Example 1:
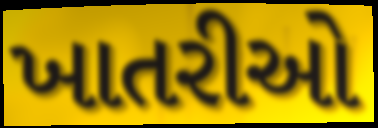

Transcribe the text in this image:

ખાતરીઓ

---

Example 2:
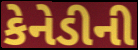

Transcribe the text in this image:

કેનેડીની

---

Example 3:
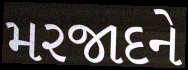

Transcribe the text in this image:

મરજાદને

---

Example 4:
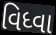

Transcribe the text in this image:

વિધ્વા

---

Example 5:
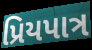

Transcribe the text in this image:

પ્રિયપાત્ર